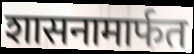
शासनामार्फत